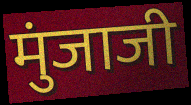
मुंजाजी